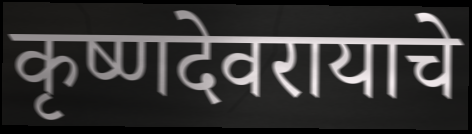
कृष्णदेवरायाचे